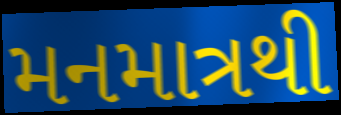
મનમાત્રથી